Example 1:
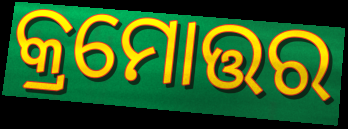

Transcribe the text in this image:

କ୍ରମୋତ୍ତର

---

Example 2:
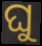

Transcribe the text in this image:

ଘୁ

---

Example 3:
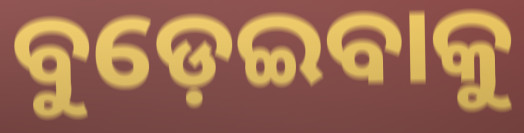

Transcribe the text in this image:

ବୁଡ଼େଇବାକୁ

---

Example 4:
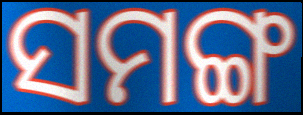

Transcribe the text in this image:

ସମଙ୍ଗ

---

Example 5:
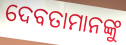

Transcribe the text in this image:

ଦେବତାମାନଙ୍କୁ